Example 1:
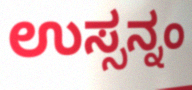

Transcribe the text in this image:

ಉಸ್ಸನ್ನಂ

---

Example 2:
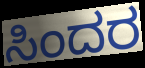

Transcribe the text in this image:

ಸಿಂದರ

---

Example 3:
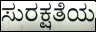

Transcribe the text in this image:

ಸುರಕ್ಷತೆಯ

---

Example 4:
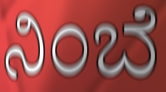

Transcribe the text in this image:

ನಿಂಬೆ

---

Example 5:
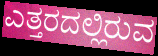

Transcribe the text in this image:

ಎತ್ತರದಲ್ಲಿರುವ